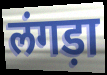
लंगड़ा